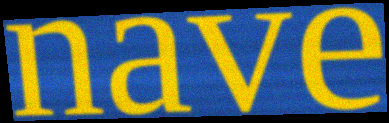
nave